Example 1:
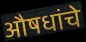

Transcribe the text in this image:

औषधांचे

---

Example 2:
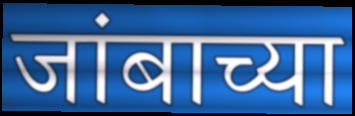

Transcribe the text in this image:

जांबाच्या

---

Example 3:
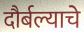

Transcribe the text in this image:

दौर्बल्याचे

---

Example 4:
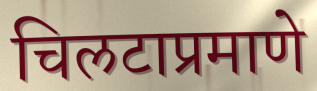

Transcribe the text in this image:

चिलटाप्रमाणे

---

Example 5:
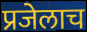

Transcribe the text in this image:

प्रजेलाच